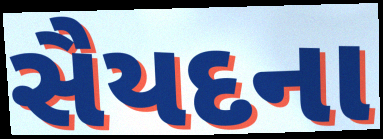
સૈયદના